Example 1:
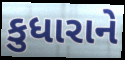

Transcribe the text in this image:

કુધારાને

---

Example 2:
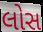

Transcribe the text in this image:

લોસ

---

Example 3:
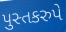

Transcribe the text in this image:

પુસ્તકરુપે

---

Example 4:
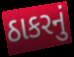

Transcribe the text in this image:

ઠાકરનું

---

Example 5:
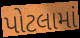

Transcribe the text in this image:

પોટલામાં